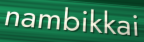
nambikkai